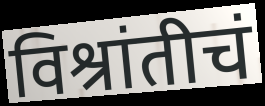
विश्रांतीचं